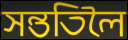
সন্ততিলৈ